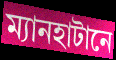
ম্যানহাটানে